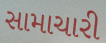
સામાચારી